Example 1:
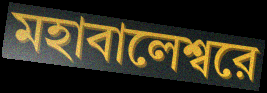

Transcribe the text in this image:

মহাবালেশ্বরে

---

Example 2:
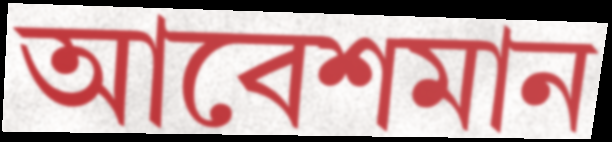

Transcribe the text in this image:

আবেশমান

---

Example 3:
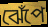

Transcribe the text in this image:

ঝেঁপে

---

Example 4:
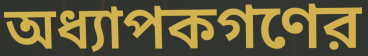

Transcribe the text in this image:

অধ্যাপকগণের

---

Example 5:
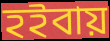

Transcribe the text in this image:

হইবায়